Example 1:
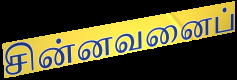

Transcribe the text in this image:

சின்னவனைப்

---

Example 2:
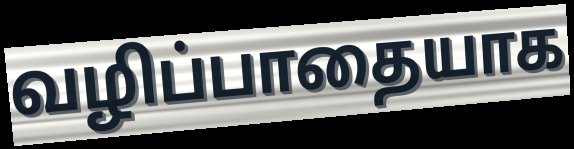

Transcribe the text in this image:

வழிப்பாதையாக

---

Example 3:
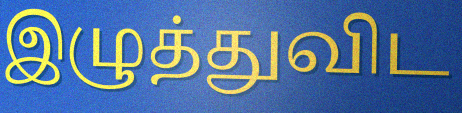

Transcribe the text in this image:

இழுத்துவிட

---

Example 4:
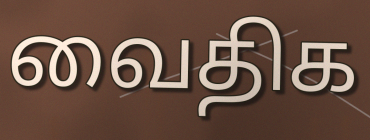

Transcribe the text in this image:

வைதிக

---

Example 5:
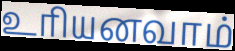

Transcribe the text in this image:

உரியனவாம்